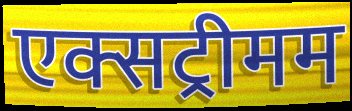
एक्सट्रीमम